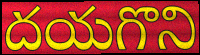
దయగొని